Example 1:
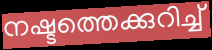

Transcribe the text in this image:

നഷ്ടത്തെക്കുറിച്ച്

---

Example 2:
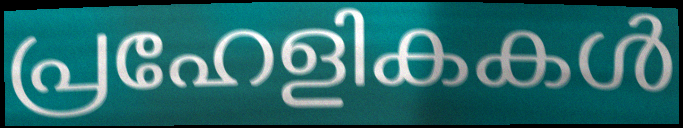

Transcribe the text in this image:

പ്രഹേളികകൾ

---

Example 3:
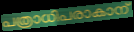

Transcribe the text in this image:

പത്രാധിപരാകാന്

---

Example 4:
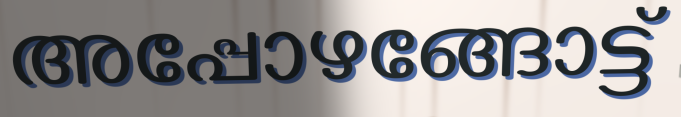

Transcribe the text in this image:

അപ്പോഴങ്ങോട്ട്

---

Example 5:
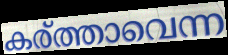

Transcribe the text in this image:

കര്ത്താവെന്ന